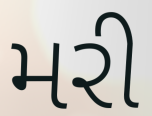
મરી